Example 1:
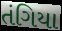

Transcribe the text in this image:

તંગિયા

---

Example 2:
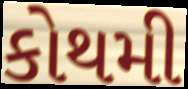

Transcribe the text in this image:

કોથમી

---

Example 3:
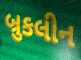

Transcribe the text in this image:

બ્રુકલીન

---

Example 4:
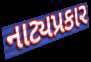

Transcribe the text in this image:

નાટ્યપ્રકાર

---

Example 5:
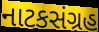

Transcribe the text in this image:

નાટકસંગ્રહ